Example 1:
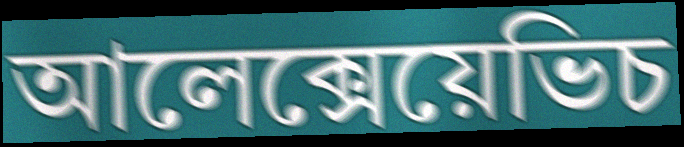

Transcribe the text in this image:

আলেক্সেয়েভিচ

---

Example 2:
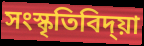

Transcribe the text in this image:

সংস্কৃতিবিদ্য়া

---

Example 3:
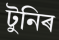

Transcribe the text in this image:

টুনিৰ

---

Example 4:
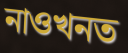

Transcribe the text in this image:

নাওখনত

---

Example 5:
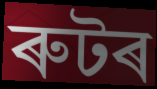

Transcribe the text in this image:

ৰুটৰ